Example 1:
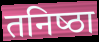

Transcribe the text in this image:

तनिष्‍ठा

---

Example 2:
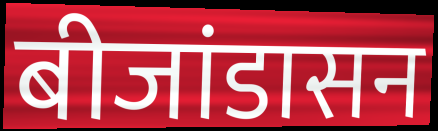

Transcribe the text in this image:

बीजांडासन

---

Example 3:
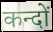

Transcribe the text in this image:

कन्दों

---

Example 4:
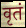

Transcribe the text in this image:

वृतं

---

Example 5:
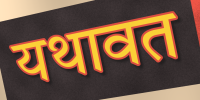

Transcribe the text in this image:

यथावत